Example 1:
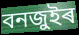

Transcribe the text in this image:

বনজুইৰ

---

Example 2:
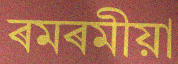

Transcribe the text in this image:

ৰমৰমীয়া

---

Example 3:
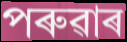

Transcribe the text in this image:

পৰুৱাৰ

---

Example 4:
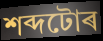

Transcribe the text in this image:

শব্দটোৰ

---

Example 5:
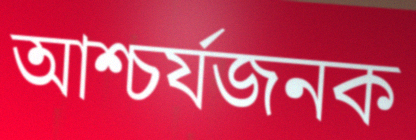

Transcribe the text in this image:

আশ্চৰ্যজনক